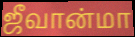
ஜீவான்மா